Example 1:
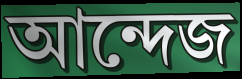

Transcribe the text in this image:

আন্দেজ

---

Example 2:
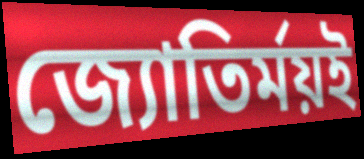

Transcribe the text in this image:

জ্যোতির্ময়ই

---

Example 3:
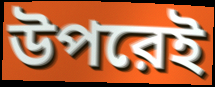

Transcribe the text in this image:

উপরেই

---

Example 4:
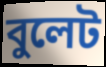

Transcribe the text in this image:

বুলেট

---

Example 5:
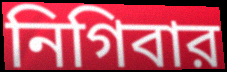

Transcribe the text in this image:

নিগিবার